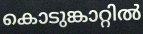
കൊടുങ്കാറ്റിൽ